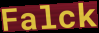
Falck